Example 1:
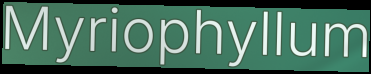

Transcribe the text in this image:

Myriophyllum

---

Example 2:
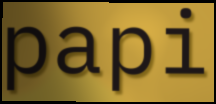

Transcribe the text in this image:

papi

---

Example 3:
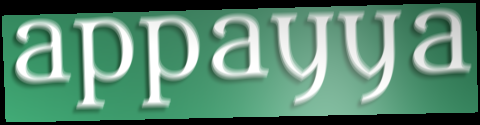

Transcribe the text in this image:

appayya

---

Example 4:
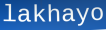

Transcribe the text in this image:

lakhayo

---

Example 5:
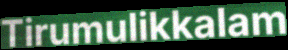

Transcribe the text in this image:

Tirumulikkalam